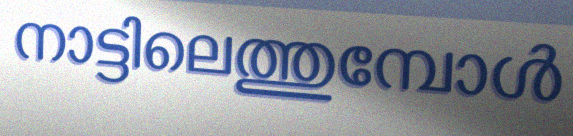
നാട്ടിലെത്തുമ്പോൾ